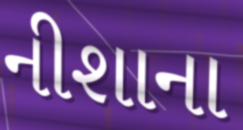
નીશાના